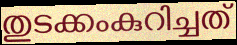
തുടക്കംകുറിച്ചത്